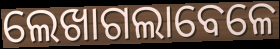
ଲେଖାଗଲାବେଳେ